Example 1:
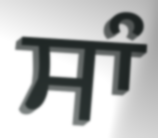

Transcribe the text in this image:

ਸਾੰ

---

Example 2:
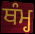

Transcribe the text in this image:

ਥੰਮ੍ਹ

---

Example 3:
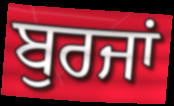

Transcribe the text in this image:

ਬੁਰਜਾਂ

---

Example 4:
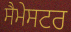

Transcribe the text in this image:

ਸੈਮੇਸਟਰ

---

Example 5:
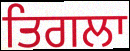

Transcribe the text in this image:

ਤਿਗਲਾ